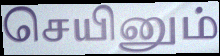
செயினும்